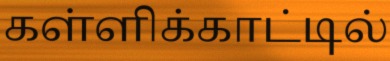
கள்ளிக்காட்டில்